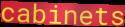
cabinets